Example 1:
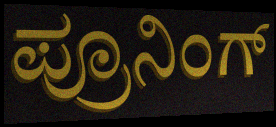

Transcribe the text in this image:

ಪ್ರೂನಿಂಗ್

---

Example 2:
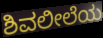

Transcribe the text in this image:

ಶಿವಲೀಲೆಯ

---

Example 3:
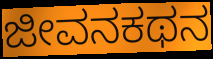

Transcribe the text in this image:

ಜೀವನಕಥನ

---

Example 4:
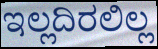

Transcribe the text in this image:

ಇಲ್ಲದಿರಲಿಲ್ಲ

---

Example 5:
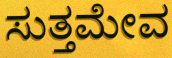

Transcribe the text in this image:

ಸುತ್ತಮೇವ